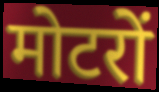
मोटरों